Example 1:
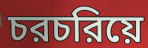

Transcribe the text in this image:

চরচরিয়ে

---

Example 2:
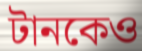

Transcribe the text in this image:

টানকেও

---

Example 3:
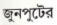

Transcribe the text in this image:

জুনপুটের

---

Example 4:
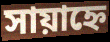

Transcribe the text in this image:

সায়াহ্নে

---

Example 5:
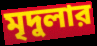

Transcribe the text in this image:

মৃদুলার